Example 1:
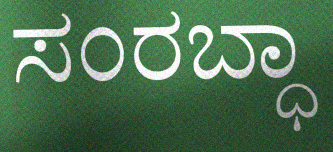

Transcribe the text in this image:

ಸಂರಬ್ಧಾ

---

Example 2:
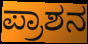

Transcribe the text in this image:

ಪ್ರಾಶನ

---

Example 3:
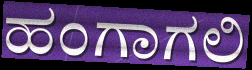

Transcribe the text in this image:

ಹಂಗಾಗಲಿ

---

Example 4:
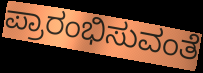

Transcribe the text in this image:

ಪ್ರಾರಂಭಿಸುವಂತೆ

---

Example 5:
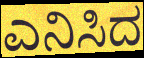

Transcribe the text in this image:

ಎನಿಸಿದ